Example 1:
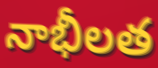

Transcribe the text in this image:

నాభీలత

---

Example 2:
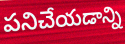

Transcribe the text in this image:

పనిచేయడాన్ని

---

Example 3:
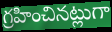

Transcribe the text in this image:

గ్రహించినట్లుగా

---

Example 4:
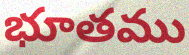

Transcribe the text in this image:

భూతము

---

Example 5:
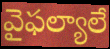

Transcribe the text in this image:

వైఫల్యాలే